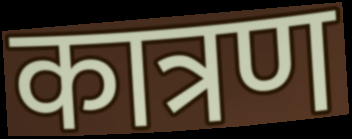
कात्रण